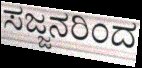
ಸಜ್ಜನರಿಂದ